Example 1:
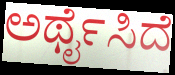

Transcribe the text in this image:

ಅರ್ಥೈಸಿದೆ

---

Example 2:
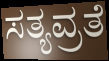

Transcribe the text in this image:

ಸತ್ಯವ್ರತೆ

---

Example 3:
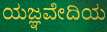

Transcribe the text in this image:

ಯಜ್ಞವೇದಿಯ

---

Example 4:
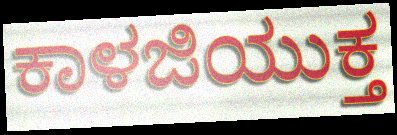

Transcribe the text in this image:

ಕಾಳಜಿಯುಕ್ತ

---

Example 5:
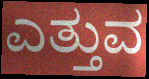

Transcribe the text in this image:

ಎತ್ತುವ